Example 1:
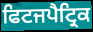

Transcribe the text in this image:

ਫਿਟਜਪੈਟ੍ਰਿਕ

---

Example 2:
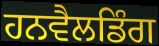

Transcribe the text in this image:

ਹਨਵੈਲਡਿੰਗ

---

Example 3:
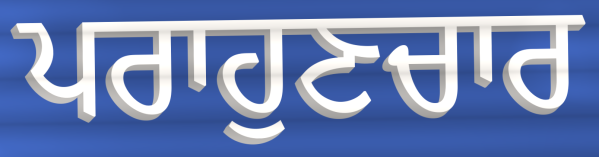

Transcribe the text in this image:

ਪਰਾਹੁਣਚਾਰ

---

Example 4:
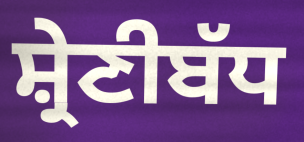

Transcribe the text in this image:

ਸ਼੍ਰੇਣੀਬੱਧ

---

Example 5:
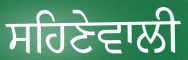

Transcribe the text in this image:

ਸਹਿਣੇਵਾਲੀ